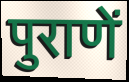
पुराणें